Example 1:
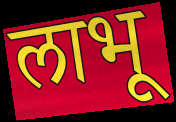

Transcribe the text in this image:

लाभू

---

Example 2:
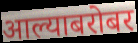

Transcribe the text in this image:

आल्याबरोबर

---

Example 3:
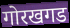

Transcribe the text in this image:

गोरखगड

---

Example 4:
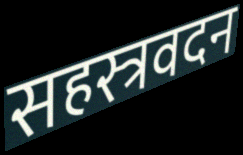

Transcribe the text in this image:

सहस्त्रवदन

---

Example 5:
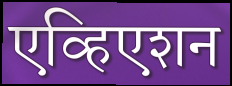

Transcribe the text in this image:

एव्हिएशन